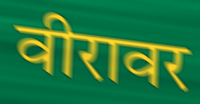
वीरावर